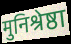
मुनिश्रेष्ठा